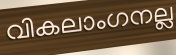
വികലാംഗനല്ല